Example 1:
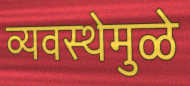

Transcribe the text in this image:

व्यवस्थेमुळे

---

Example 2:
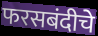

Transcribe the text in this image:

फरसबंदीचे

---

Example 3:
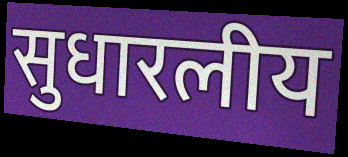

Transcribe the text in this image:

सुधारलीय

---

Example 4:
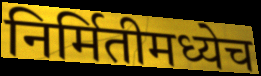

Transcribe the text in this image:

निर्मितीमध्येच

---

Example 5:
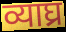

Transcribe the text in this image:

व्याघ्र